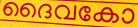
ദൈവകോ